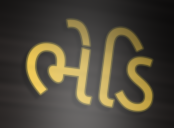
ભેડિ